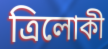
ত্রিলোকী